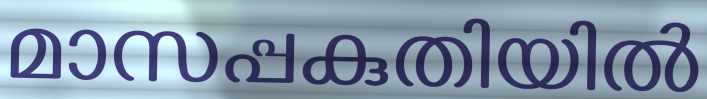
മാസപ്പകുതിയിൽ